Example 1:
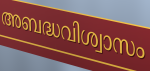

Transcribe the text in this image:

അബദ്ധവിശ്വാസം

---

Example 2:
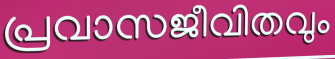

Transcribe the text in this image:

പ്രവാസജീവിതവും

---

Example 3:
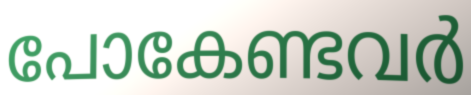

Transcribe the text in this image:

പോകേണ്ടവർ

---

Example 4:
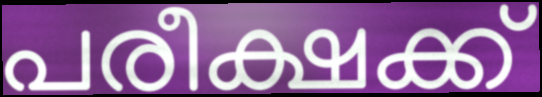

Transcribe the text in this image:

പരീക്ഷക്ക്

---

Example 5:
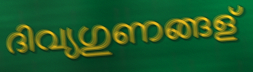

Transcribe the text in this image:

ദിവ്യഗുണങ്ങള്